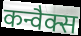
कन्वैक्स